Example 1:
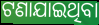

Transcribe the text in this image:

ଟଣାଯାଇଥିବା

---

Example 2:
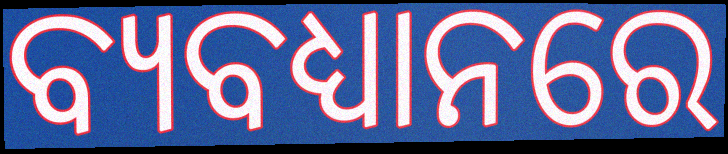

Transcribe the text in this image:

ବ୍ୟବଧ୍ୟାନରେ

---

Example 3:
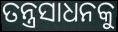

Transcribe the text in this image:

ତନ୍ତ୍ରସାଧନକୁ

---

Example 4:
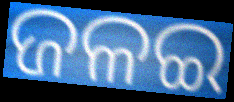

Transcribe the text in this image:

ଜଳଇ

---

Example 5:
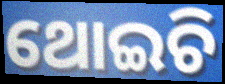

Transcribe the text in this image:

ଥୋଇଚି